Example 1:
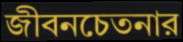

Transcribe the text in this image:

জীবনচেতনার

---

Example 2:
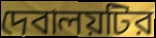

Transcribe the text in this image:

দেবালয়টির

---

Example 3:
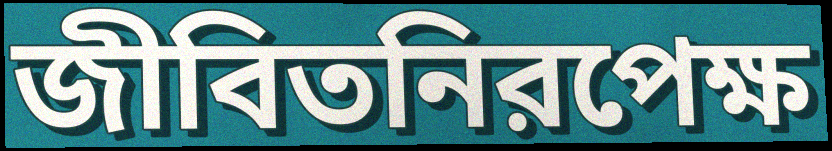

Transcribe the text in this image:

জীবিতনিরপেক্ষ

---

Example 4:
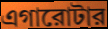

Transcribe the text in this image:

এগারোটার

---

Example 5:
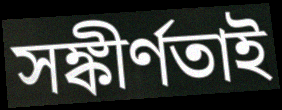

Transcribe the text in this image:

সঙ্কীর্ণতাই